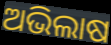
ଅଭିଲାଷ